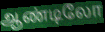
ஆண்டிலோ